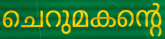
ചെറുമകന്റെ